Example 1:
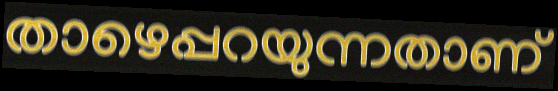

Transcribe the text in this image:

താഴെപ്പറയുന്നതാണ്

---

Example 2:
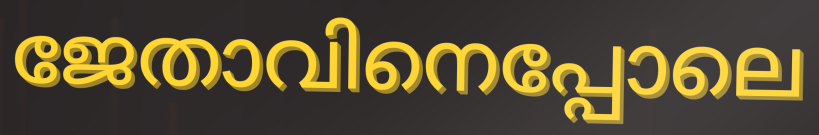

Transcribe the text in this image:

ജേതാവിനെപ്പോലെ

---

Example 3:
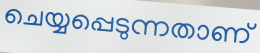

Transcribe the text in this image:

ചെയ്യപ്പെടുന്നതാണ്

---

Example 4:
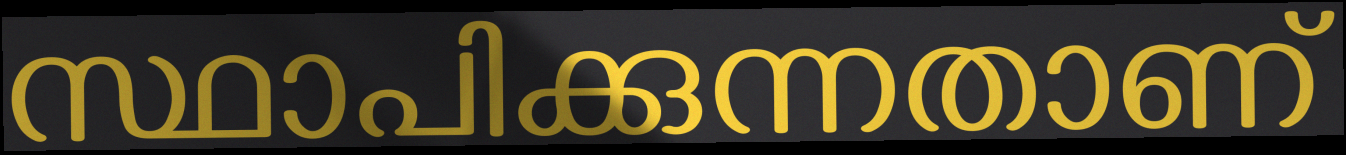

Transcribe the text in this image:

സ്ഥാപിക്കുന്നതാണ്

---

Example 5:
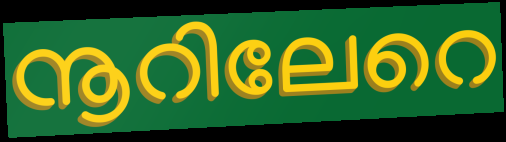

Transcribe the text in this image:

നൂറിലേറെ